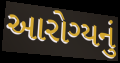
આરોગ્યનું